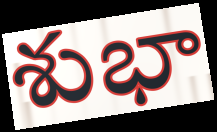
శుభా